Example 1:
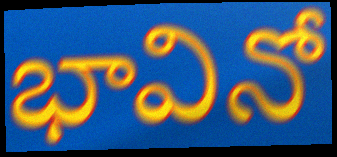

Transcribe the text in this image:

భావినో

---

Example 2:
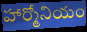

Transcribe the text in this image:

హార్మోనియం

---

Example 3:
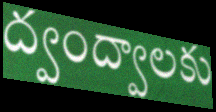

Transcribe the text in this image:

ద్వంద్వాలకు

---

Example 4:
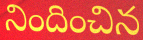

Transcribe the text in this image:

నిందించిన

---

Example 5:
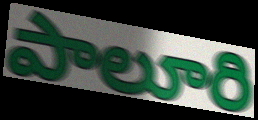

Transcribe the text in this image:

పాలూరి